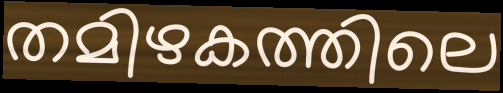
തമിഴകത്തിലെ